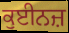
ਕੁਈਨਜ਼